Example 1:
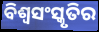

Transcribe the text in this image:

ବିଶ୍ୱସଂସ୍କୃତିର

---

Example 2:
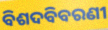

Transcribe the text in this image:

ବିଶଦବିବରଣୀ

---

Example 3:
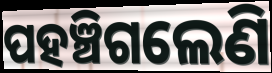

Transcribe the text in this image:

ପହଞ୍ଚିଗଲେଣି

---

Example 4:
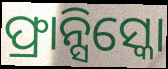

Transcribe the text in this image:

ଫ୍ରାନ୍ସିସ୍କୋ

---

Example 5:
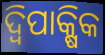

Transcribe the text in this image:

ଦ୍ବିପାକ୍ଷିକ